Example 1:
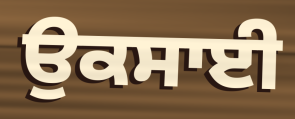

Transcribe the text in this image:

ਉਕਸਾਈ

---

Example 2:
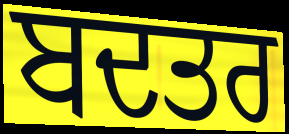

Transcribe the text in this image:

ਬਦਤਰ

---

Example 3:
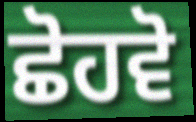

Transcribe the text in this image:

ਛੋਹਵੋ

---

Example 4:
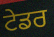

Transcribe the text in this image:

ਟੇਡਰ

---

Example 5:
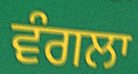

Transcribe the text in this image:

ਵੰਗਲਾ